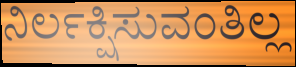
ನಿರ್ಲಕ್ಷಿಸುವಂತಿಲ್ಲ